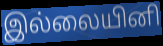
இல்லையினி